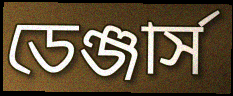
ডেঞ্জার্স